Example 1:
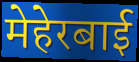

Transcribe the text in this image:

मेहेरबाई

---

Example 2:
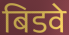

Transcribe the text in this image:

बिडवे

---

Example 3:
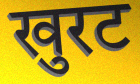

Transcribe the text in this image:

खुरट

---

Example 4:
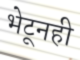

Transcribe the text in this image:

भेटूनही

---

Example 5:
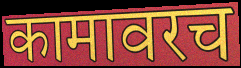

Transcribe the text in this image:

कामावरच